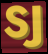
SJ